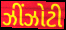
ઝીંઝોટી